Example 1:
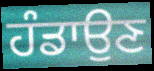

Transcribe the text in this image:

ਹੰਡਾਉਣ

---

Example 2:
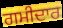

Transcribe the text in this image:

ਗਮੀਦਾਰ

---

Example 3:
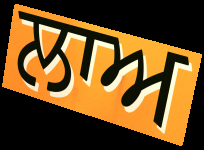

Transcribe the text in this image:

ਲਾਅ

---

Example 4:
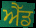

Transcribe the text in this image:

ਐੱਡ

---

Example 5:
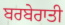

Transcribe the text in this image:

ਬਰਬੇਰਾਤੀ